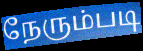
நேரும்படி